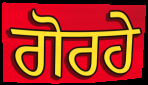
ਗੋਰਹੇ